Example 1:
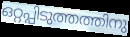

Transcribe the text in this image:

ഒറ്റപ്പിടുത്തത്തിനു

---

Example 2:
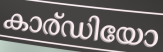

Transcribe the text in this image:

കാര്ഡിയോ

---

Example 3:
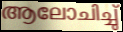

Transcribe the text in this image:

ആലോചിച്ചു്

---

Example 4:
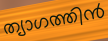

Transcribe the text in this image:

ത്യാഗത്തിൻ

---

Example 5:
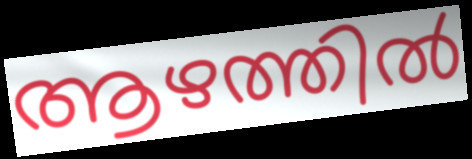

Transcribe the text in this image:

ആഴത്തിൽ